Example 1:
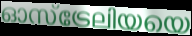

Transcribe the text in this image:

ഓസ്ട്രേലിയയെ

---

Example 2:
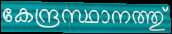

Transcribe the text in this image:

കേന്ദ്രസ്ഥാനത്തു്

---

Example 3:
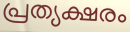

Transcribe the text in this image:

പ്രത്യക്ഷരം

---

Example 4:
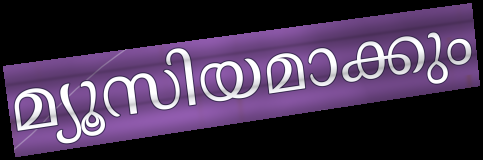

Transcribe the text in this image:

മ്യൂസിയമാക്കും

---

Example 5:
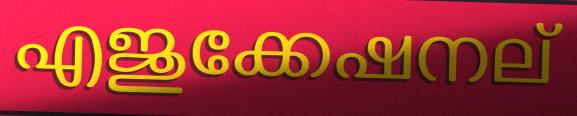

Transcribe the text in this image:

എജുക്കേഷനല്